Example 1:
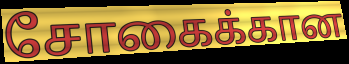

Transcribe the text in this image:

சோகைக்கான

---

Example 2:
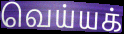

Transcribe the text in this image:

வெய்யக்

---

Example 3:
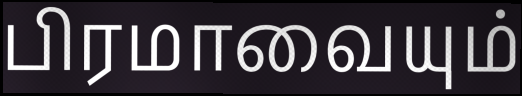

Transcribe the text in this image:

பிரமாவையும்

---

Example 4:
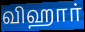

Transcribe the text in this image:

விஹார்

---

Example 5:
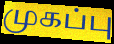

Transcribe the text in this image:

முகப்பு